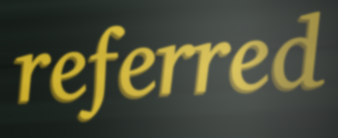
referred